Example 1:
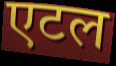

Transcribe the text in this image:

एटल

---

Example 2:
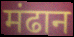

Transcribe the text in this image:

मंढान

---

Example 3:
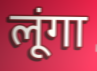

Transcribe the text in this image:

लूंगा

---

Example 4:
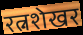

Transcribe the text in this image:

रत्नशेखर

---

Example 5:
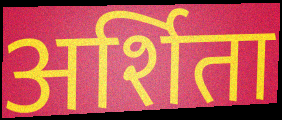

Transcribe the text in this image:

अर्शिता